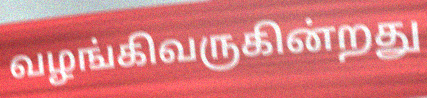
வழங்கிவருகின்றது